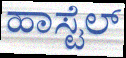
ಹಾಸ್ಟೆಲ್